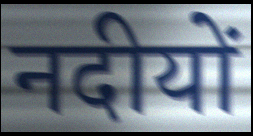
नदीयों